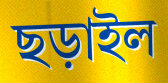
ছড়াইল